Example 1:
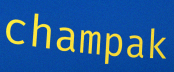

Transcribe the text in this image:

champak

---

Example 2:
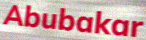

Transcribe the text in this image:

Abubakar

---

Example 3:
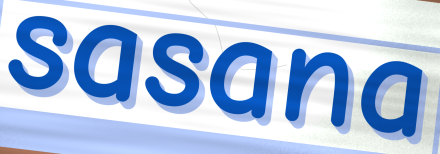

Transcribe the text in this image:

sasana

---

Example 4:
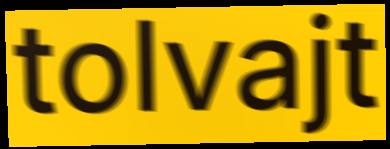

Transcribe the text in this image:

tolvajt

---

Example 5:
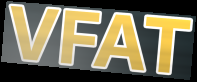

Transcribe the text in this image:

VFAT